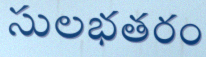
సులభతరం